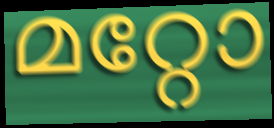
മറ്റോ